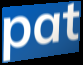
pat